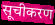
सूचीकरण